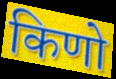
किणो